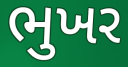
ભુખર